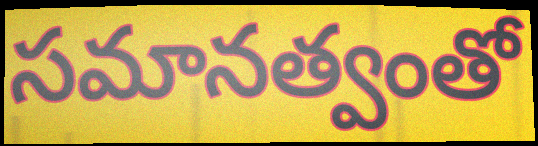
సమానత్వంతో